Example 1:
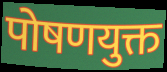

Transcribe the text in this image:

पोषणयुक्त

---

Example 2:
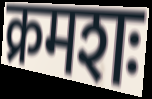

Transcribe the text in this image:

क्रमशः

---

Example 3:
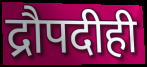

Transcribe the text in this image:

द्रौपदीही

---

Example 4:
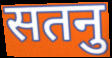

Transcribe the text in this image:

सतनु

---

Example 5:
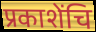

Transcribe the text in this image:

प्रकाशेंचि